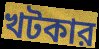
খটকার